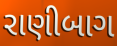
રાણીબાગ